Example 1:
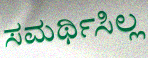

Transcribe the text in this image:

ಸಮರ್ಥಿಸಿಲ್ಲ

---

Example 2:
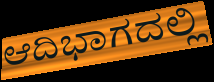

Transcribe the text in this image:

ಆದಿಭಾಗದಲ್ಲಿ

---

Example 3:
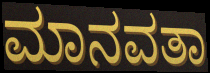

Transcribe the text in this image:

ಮಾನವತಾ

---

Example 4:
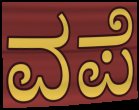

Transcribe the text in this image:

ವಪೆ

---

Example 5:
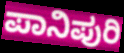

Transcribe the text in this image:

ಪಾನಿಪುರಿ